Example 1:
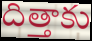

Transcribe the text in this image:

దిత్తాకు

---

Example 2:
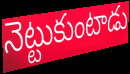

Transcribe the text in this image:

నెట్టుకుంటాడు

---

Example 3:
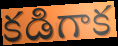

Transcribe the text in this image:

కడిగాక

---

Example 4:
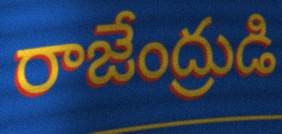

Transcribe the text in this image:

రాజేంద్రుడి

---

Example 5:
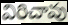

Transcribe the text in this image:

విరిచావు